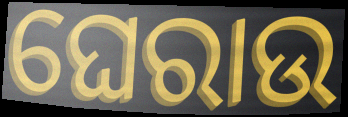
ଘେରାଉ